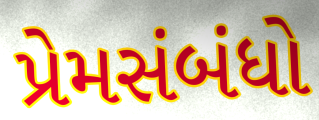
પ્રેમસંબંધો